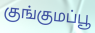
குங்குமப்பூ